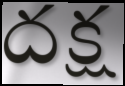
దక్ష